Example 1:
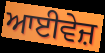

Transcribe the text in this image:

ਆਈਵੇਜ਼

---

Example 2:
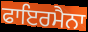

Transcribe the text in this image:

ਫਾਇਰਮੈਨਾ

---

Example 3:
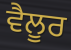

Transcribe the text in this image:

ਵੈਲੂਰ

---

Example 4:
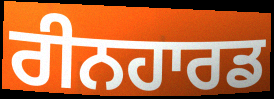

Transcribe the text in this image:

ਰੀਨਹਾਰਡ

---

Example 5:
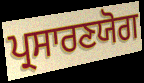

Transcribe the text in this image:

ਪ੍ਰਸਾਰਣਯੋਗ